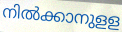
നിൽക്കാനുളള